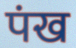
पंख